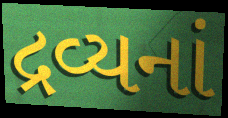
દ્રવ્યનાં